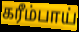
கரீம்பாய்